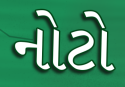
નોટો